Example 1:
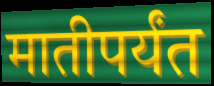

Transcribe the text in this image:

मातीपर्यंत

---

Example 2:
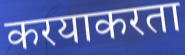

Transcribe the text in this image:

करयाकरता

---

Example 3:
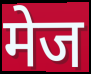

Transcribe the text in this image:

मेज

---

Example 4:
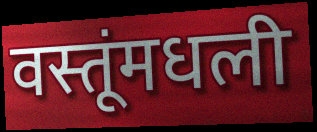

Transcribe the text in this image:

वस्तूंमधली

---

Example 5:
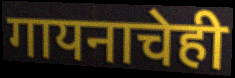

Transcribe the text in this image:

गायनाचेही